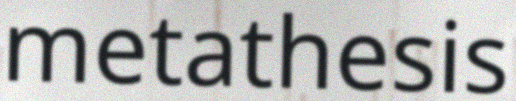
metathesis